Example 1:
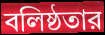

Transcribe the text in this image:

বলিষ্ঠতার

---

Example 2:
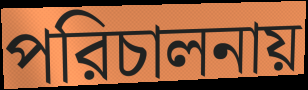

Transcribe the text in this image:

পরিচালনায়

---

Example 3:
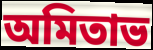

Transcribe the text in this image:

অমিতাভ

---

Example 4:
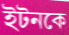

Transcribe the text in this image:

ইটনকে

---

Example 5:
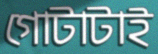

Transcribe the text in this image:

গোটাটাই